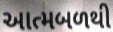
આત્મબળથી